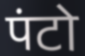
पंटो